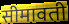
सीमावती